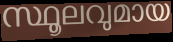
സ്ഥൂലവുമായ